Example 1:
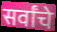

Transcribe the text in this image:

सर्वांचे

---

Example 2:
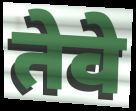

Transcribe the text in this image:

तेवे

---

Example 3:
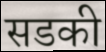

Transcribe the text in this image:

सडकी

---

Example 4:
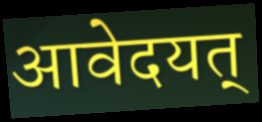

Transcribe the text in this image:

आवेदयत्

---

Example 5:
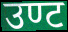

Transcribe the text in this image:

उण्ट